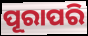
ପୂରାପରି